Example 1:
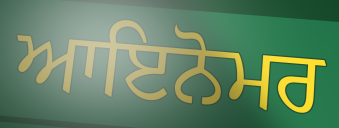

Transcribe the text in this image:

ਆਇਨੋਮਰ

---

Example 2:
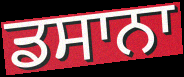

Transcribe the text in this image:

ਡਸਾਨਾ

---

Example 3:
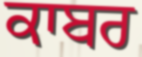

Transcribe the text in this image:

ਕਾਬਰ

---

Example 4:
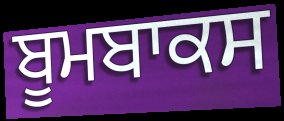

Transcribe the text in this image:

ਬੂਮਬਾਕਸ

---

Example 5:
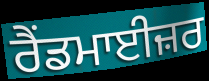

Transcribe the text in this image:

ਰੈਂਡਮਾਈਜ਼ਰ